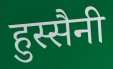
हुस्सैनी